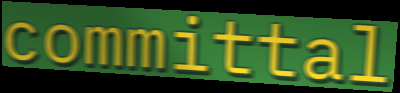
committal